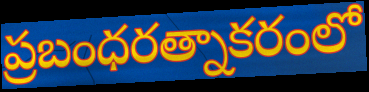
ప్రబంధరత్నాకరంలో